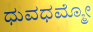
ಧುವಧಮ್ಮೋ